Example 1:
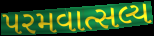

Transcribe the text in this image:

પરમવાત્સલ્ય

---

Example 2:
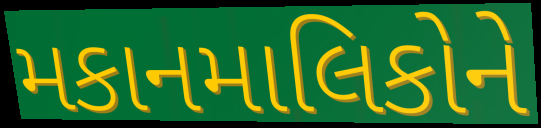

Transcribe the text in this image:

મકાનમાલિકોને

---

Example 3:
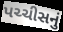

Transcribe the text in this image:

પચ્ચીસનું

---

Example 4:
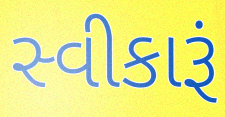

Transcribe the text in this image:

સ્વીકારૂં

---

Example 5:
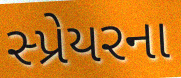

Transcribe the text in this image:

સ્પ્રેયરના